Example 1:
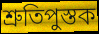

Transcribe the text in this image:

শ্রুতিপুস্তক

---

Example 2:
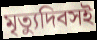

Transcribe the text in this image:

মৃত্যুদিবসই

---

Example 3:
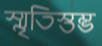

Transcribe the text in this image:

স্মৃতিস্তম্ভ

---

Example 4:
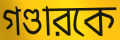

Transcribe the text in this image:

গণ্ডারকে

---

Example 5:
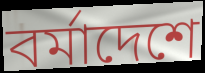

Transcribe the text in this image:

বর্মাদেশে